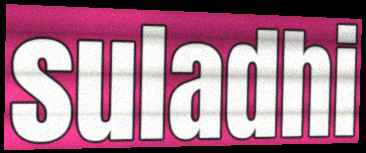
suladhi